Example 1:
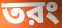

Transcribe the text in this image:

তরং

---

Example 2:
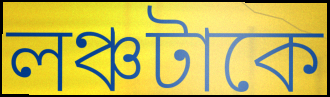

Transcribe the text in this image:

লঞ্চটাকে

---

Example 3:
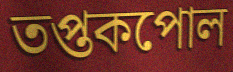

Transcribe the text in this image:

তপ্তকপোল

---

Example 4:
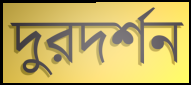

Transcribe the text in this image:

দুরদর্শন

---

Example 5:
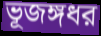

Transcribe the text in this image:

ভূজঙ্গধর